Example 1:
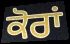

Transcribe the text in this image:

ਕੋਰਾਂ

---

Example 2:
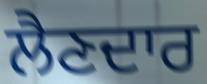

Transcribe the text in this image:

ਲੈਣਦਾਰ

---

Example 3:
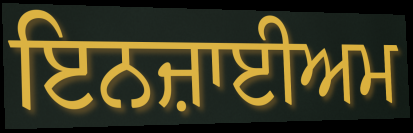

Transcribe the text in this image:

ਇਨਜ਼ਾਈਅਮ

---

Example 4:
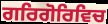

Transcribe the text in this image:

ਗਰਿਗੋਰਿਵਿਚ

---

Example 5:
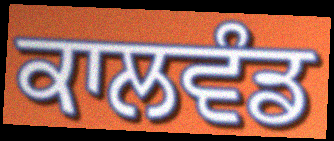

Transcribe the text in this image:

ਕਾਲਵੰਡ